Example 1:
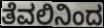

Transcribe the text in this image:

ತೆವಲಿನಿಂದ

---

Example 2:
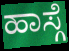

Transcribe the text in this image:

ಹಾಸ್ಗೆ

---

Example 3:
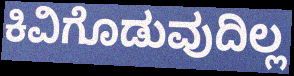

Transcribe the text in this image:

ಕಿವಿಗೊಡುವುದಿಲ್ಲ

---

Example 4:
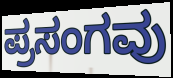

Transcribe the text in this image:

ಪ್ರಸಂಗವು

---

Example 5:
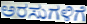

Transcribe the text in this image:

ಅರಸುಗಳಿಗೆ